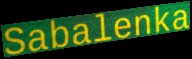
Sabalenka